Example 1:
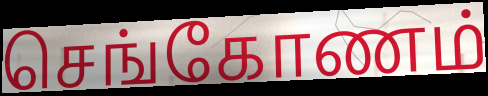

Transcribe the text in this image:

செங்கோணம்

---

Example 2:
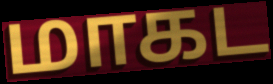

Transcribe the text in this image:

மாகட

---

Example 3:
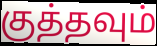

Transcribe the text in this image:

குத்தவும்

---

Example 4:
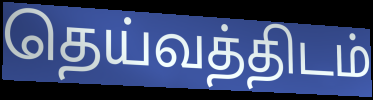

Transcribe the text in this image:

தெய்வத்திடம்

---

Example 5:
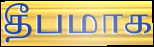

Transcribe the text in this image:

தீபமாக